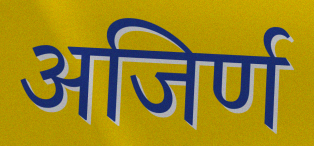
अजिर्ण